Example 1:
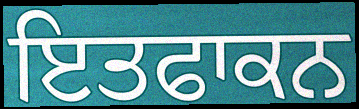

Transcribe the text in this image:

ਇਤਫਾਕਨ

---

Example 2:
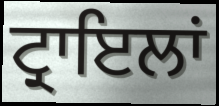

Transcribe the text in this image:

ਟ੍ਰਾਇਲਾਂ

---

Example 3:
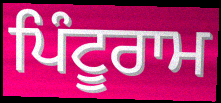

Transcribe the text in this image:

ਪਿੰਟੂਰਾਮ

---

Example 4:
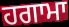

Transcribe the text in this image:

ਹਗਾਮਾ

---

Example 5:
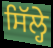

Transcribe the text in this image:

ਸਿੱਲ੍ਹੇ